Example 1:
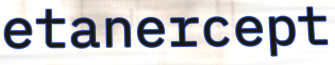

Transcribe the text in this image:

etanercept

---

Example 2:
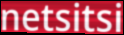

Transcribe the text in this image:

netsitsi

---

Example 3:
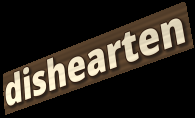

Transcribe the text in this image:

dishearten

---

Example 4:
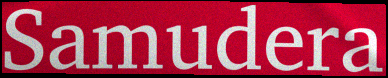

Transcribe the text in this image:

Samudera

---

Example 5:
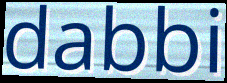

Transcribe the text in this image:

dabbi